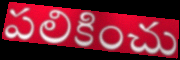
పలికించు